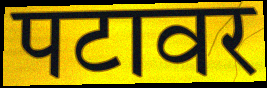
पटावर